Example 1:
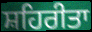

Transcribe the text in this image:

ਸ਼ਹਿਰੀਤਾ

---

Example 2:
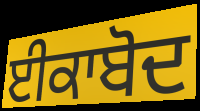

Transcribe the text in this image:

ਈਕਾਬੋਦ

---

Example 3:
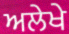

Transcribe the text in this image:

ਅਲੇਖੇ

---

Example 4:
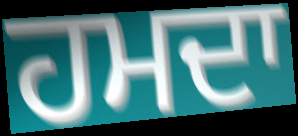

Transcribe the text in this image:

ਹਮਦਾ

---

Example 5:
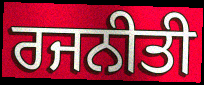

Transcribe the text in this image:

ਰਜਨੀਤੀ